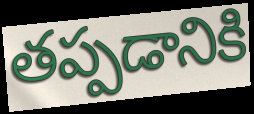
తప్పడానికి